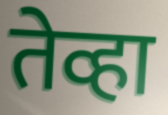
तेव्हा